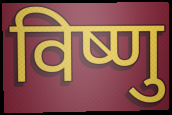
विष्‍णु